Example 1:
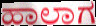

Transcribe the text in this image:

ಹಾಲಾಗ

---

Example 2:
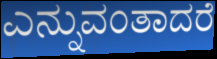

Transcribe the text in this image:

ಎನ್ನುವಂತಾದರೆ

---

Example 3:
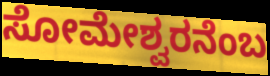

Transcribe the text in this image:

ಸೋಮೇಶ್ವರನೆಂಬ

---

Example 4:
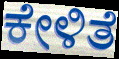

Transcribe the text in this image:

ಕೇಳಿತೆ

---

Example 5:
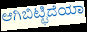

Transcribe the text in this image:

ಆಗಿಬಿಟ್ಟಿದೆಯಾ